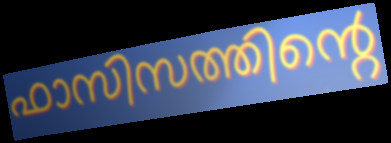
ഫാസിസത്തിന്റെ